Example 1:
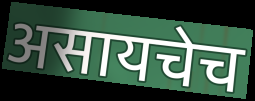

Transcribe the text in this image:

असायचेच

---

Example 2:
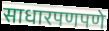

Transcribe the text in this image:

साधारपणपणे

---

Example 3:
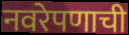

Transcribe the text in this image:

नवरेपणाची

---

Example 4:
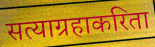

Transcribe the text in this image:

सत्याग्रहाकरिता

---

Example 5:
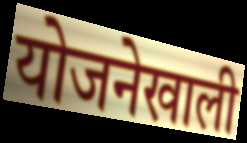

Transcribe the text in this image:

योजनेखाली